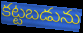
కట్టబడును